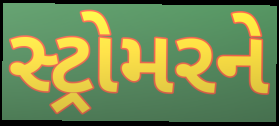
સ્ટ્રોમરને